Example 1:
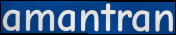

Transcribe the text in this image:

amantran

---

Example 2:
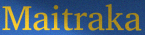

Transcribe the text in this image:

Maitraka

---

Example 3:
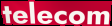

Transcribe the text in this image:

telecom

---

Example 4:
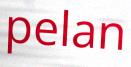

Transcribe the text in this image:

pelan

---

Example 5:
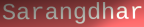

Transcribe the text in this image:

Sarangdhar